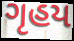
ગૃહય